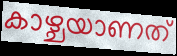
കാഴ്ചയാണത്